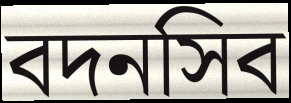
বদনসিব